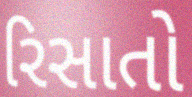
રિસાતો